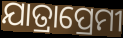
ଯାତ୍ରାପ୍ରେମୀ